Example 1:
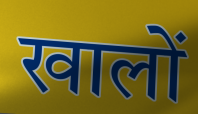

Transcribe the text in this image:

खालों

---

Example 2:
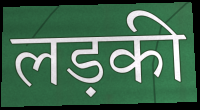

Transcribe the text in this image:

लड़की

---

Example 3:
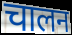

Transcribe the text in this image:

चालन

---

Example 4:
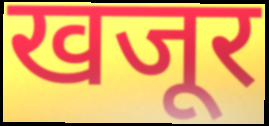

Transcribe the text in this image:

खजूर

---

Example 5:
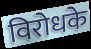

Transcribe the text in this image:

विरोधके